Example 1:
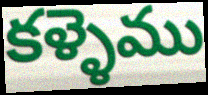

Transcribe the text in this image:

కళ్ళెము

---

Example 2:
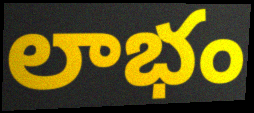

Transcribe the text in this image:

లాభం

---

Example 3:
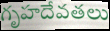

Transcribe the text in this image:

గృహదేవతలు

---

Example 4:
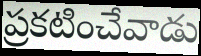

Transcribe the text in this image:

ప్రకటించేవాడు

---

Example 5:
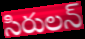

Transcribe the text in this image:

సిరులన్